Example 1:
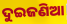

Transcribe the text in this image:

ଦୁଇଜଣିଆ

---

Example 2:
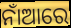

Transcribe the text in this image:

ନାଁଆରେ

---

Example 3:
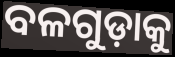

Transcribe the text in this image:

ବଳଗୁଡ଼ାକୁ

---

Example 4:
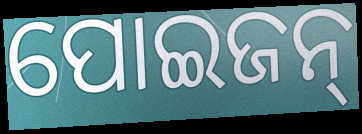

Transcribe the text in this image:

ପୋଇଜନ୍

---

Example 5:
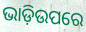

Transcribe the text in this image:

ଭାଡ଼ିଉପରେ